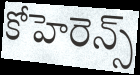
కోహెరెన్స్